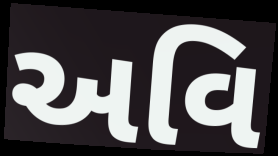
અવિ